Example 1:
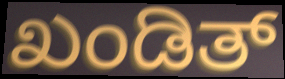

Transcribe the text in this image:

ಖಂಡಿತ್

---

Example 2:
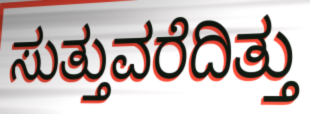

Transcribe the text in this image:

ಸುತ್ತುವರೆದಿತ್ತು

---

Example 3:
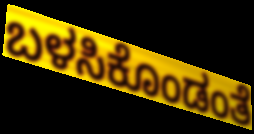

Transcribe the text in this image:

ಬಳಸಿಕೊಂಡಂತೆ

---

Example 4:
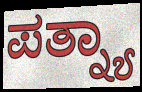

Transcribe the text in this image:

ಪತ್ನ್ಯಾ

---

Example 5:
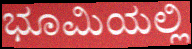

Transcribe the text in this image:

ಭೂಮಿಯಲ್ಲಿ